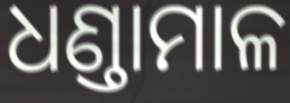
ଧଣ୍ଡାମାଳ